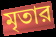
মৃতার